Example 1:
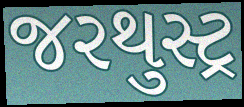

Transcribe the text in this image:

જરથુસ્ટ્ર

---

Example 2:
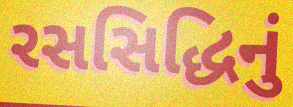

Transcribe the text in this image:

રસસિદ્ધિનું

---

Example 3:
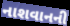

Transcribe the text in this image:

નાશવાનની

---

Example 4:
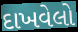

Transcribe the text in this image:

દાખવેલો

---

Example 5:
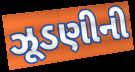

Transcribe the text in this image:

ઝૂડણીની